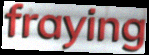
fraying